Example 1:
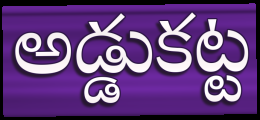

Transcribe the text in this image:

అడ్డుకట్ట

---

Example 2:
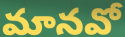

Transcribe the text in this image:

మానవో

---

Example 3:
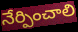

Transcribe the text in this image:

నేర్పించాలి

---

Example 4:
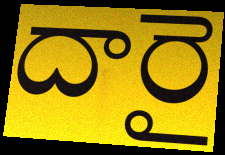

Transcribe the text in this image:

దారై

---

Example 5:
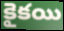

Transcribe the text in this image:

కైకయి